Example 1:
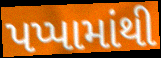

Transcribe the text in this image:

પપ્પામાંથી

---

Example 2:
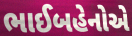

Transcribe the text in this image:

ભાઈબહેનોએ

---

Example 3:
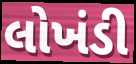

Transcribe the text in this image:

લોખંડી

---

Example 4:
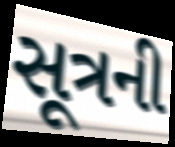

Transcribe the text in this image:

સૂત્રની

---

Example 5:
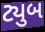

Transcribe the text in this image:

ટ્યુબ